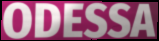
ODESSA